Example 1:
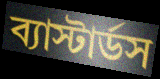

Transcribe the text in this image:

ব্যাস্টার্ডস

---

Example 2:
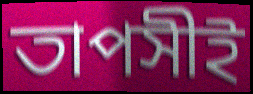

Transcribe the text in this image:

তাপসীই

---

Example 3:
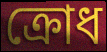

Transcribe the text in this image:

ক্রোধ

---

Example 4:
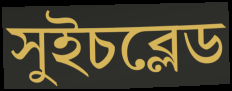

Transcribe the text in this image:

সুইচব্লেড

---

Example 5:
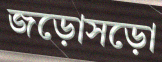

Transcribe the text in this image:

জড়োসড়ো